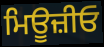
ਮਿਊਜ਼ੀਓ